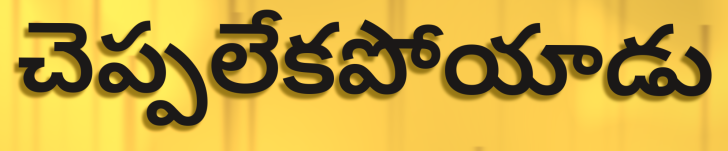
చెప్పలేకపోయాడు